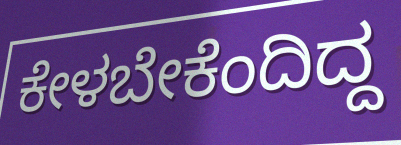
ಕೇಳಬೇಕೆಂದಿದ್ದ